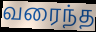
வரைந்த